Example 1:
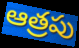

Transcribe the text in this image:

ఆత్రపు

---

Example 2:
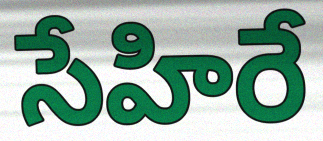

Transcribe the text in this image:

సేహిరే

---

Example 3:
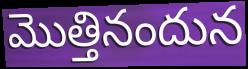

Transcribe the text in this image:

మొత్తినందున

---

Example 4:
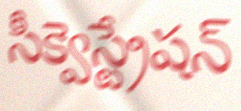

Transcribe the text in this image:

సీక్వెస్ట్రేషన్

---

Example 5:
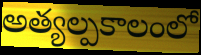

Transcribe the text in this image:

అత్యల్పకాలంలో